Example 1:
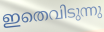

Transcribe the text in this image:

ഇതെവിടുന്നു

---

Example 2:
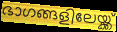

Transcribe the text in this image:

ഭാഗങ്ങളിലേയ്ക്ക്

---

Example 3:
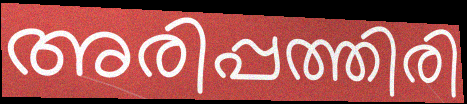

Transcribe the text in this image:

അരിപ്പത്തിരി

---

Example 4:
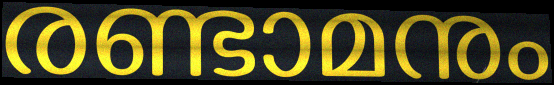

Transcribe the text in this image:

രണ്ടാമനും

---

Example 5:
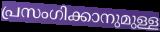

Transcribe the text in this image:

പ്രസംഗിക്കാനുമുള്ള